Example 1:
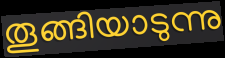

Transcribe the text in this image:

തൂങ്ങിയാടുന്നു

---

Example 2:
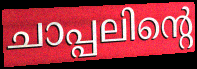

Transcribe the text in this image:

ചാപ്പലിന്റെ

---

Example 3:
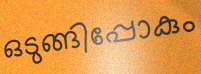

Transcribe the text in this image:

ഒടുങ്ങിപ്പോകും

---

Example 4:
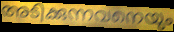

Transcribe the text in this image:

അടിക്കുന്നവനെയും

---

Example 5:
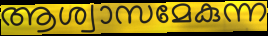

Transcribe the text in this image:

ആശ്വാസമേകുന്ന